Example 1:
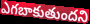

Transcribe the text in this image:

ఎగబాకుతుందని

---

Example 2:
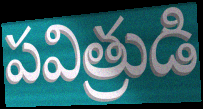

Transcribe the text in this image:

పవిత్రుడి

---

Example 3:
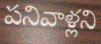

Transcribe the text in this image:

పనివాళ్లని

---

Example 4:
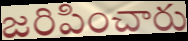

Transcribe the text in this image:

జరిపించారు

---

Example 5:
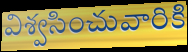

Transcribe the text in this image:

విశ్వసించువారికి